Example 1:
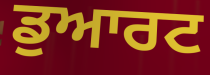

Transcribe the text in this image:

ਡੁਆਰਟ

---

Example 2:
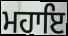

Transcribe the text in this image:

ਮਹਾਇ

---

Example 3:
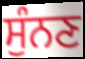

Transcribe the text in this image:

ਸੁੰਨਣ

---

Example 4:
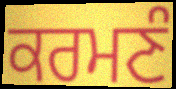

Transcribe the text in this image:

ਕਰਮਣੰ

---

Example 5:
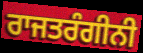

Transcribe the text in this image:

ਰਾਜਤਰੰਗੀਨੀ